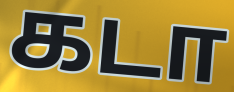
கடா